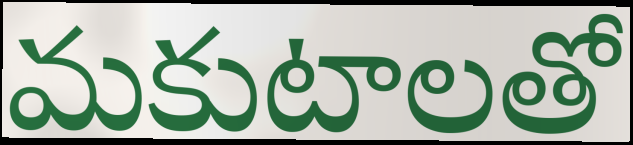
మకుటాలతో